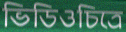
ভিডিওচিত্রে